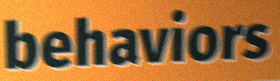
behaviors